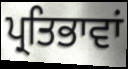
ਪ੍ਰਤਿਭਾਵਾਂ